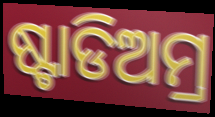
ଷ୍ଟାଡିଅମ୍ର